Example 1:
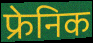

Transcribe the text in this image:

फ्रेनिक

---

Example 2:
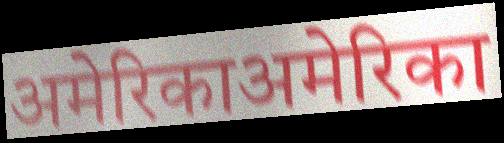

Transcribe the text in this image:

अमेरिकाअमेरिका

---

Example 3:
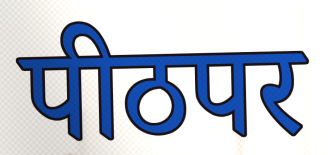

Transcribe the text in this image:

पीठपर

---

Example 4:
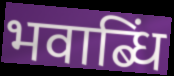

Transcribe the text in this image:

भवाब्धिं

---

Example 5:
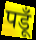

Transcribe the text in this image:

पडूँ